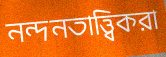
নন্দনতাত্ত্বিকরা